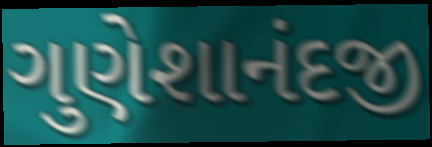
ગુણેશાનંદજી